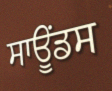
ਸਾਊਂਡਸ